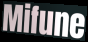
Mifune